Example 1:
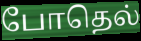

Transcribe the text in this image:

போதெல்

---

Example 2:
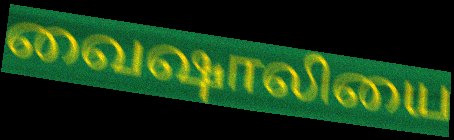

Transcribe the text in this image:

வைஷாலியை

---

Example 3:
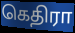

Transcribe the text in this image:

கெதிரா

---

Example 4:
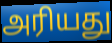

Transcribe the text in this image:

அரியது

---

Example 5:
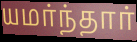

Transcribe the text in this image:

யமர்ந்தார்